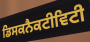
ਡਿਸਕਨੈਕਟੀਵਿਟੀ